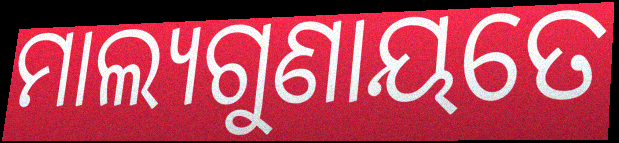
ମାଲ୍ୟଗୁଣାୟତେ